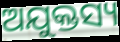
ଅଯୁକ୍ତସ୍ୟ